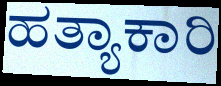
ಹತ್ಯಾಕಾರಿ